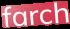
farch